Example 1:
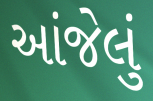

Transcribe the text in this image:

આંજેલું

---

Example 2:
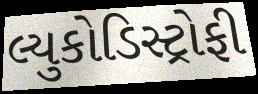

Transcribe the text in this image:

લ્યુકોડિસ્ટ્રોફી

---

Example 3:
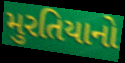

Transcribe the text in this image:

મુરતિયાનો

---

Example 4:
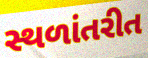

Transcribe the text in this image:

સ્થળાંતરીત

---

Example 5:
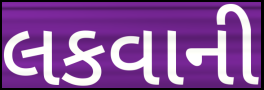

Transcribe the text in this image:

લકવાની